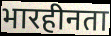
भारहीनता